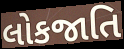
લોકજાતિ